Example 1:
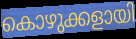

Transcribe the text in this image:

കൊഴുക്കളായി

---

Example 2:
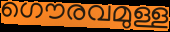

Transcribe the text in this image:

ഗൌരവമുള്ള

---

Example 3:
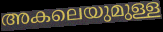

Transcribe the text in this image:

അകലെയുമുള്ള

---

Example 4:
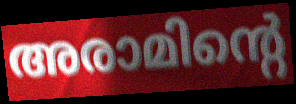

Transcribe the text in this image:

അരാമിന്റെ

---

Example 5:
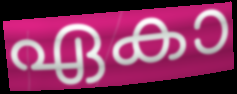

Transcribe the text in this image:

ഏകാ